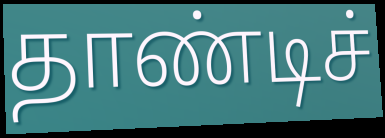
தாண்டிச்